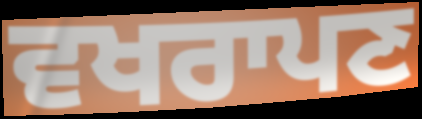
ਵਖਰਾਪਣ